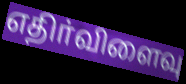
எதிர்விளைவு